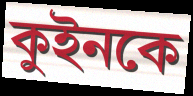
কুইনকে